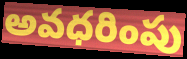
అవధరింపు